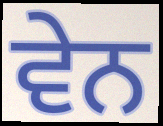
ਵੇਨ